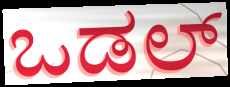
ಒಡಲ್